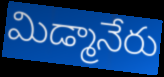
మిడ్మానేరు